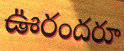
ఊరందరూ